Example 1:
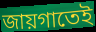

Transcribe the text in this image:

জায়গাতেই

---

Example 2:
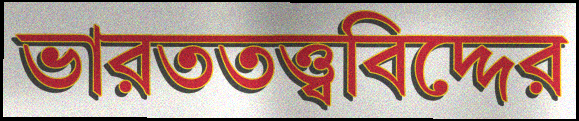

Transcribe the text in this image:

ভারততত্ত্ববিদ্দের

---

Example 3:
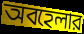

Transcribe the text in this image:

অবহেলার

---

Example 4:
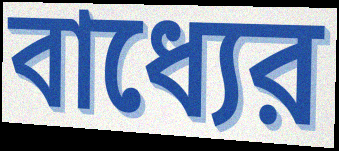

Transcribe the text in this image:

বাধ্যের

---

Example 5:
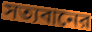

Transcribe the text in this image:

সত্যবানের